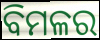
ବିମଳର